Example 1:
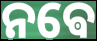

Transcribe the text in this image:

ନଵେ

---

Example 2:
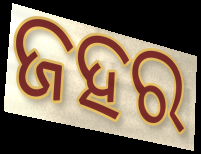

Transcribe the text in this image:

ଜହର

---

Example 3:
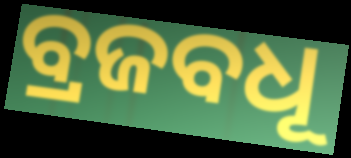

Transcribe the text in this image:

ବ୍ରଜବଧୂ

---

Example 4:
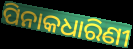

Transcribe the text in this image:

ପିନାକଧାରିଣୀ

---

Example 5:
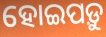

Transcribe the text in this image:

ହୋଇପଡ଼ୁ